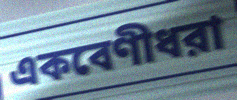
একবেণীধরা